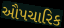
ઔપચારિક